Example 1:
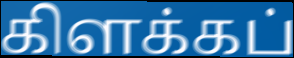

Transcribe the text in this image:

கிளக்கப்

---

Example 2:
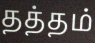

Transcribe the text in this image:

தத்தம்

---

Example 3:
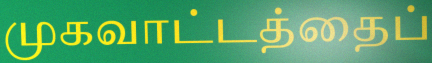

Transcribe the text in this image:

முகவாட்டத்தைப்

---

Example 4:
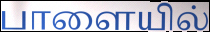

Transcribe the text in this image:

பாளையில்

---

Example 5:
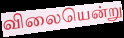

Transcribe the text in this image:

விலையென்று